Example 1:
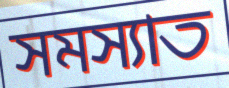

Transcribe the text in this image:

সমস্যাত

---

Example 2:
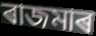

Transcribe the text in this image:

ৰাজমাৰ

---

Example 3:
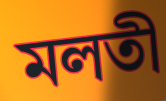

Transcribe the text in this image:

মলতী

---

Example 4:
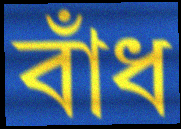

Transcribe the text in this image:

বাঁধ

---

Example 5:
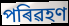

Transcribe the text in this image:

পৰিৱহণ